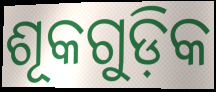
ଶୂକଗୁଡ଼ିକ